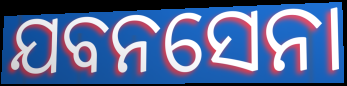
ଯବନସେନା